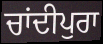
ਚਾਂਦੀਪੁਰਾ